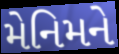
મેનિમને